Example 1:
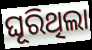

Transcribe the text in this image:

ଘୂରିଥିଲା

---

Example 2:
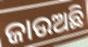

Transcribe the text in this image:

ଜାଉଅଛି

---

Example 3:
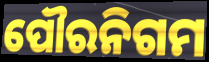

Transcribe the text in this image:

ପୌରନିଗମ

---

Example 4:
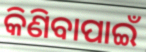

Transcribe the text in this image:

କିଣିବାପାଇଁ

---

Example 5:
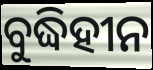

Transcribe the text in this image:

ବୁଦ୍ଧିହୀନ